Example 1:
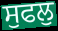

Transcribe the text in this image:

ਸੁਫਲੁ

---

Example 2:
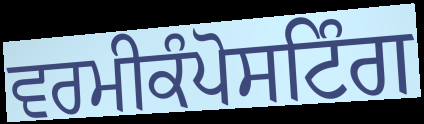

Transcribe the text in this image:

ਵਰਮੀਕੰਪੋਸਟਿੰਗ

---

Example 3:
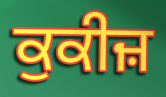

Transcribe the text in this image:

ਕੁਕੀਜ਼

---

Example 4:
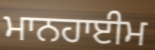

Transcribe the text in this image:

ਮਾਨਹਾਈਮ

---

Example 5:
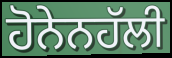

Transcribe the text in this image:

ਹੋਨੇਨਹੱਲੀ